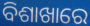
ବିଶାଖାରେ